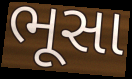
ભૂસા